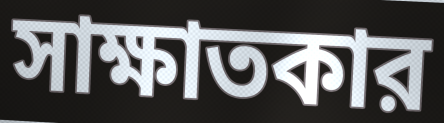
সাক্ষাতকার